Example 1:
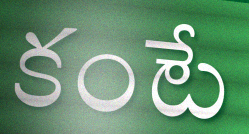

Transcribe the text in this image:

కంటే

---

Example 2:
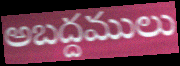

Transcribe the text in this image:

అబద్దములు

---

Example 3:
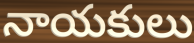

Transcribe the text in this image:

నాయకులు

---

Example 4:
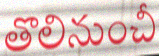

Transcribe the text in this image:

తొలినుంచీ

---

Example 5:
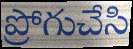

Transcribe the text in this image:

ప్రోగుచేసి